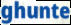
ghunte